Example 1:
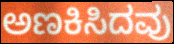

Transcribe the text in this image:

ಅಣಕಿಸಿದವು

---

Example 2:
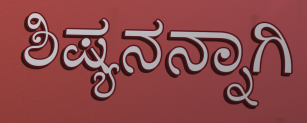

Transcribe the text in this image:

ಶಿಷ್ಯನನ್ನಾಗಿ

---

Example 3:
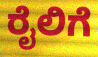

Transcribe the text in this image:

ರೈಲಿಗೆ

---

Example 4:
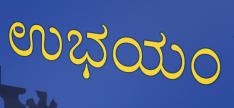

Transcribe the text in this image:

ಉಭಯಂ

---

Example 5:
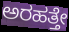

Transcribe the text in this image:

ಅರಹತ್ತೇ